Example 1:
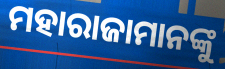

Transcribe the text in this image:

ମହାରାଜାମାନଙ୍କୁ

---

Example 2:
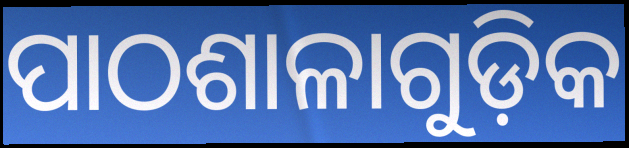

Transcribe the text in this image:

ପାଠଶାଳାଗୁଡ଼ିକ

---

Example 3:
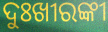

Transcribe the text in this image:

ଦୁଃଖୀରଙ୍କୀ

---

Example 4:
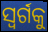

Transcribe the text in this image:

ସ୍ୱର୍ଗକୁ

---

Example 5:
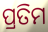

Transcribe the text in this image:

ପ୍ରତିମ